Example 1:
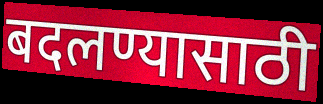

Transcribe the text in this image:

बदलण्यासाठी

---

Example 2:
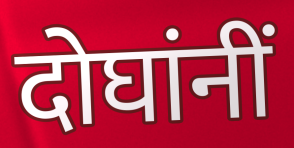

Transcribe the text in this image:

दोघांनीं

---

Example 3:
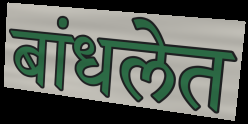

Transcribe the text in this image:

बांधलेत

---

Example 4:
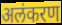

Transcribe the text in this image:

अलंकरण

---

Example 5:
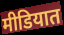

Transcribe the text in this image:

मीडियात